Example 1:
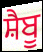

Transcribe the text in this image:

ਸ਼ੈਬੂ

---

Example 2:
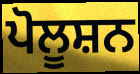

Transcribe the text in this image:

ਪੋਲੂਸ਼ਨ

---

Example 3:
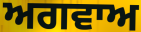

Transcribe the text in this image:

ਅਗਵਾਅ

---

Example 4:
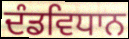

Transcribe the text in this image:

ਦੰਡਵਿਧਾਨ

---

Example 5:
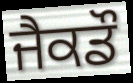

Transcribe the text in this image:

ਜੈਕਡੌ